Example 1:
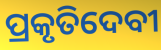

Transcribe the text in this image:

ପ୍ରକୃତିଦେବୀ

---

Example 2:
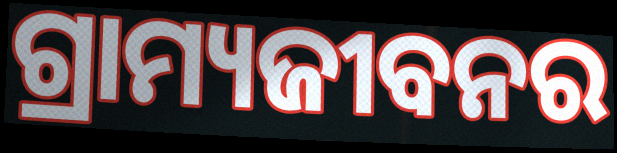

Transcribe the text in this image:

ଗ୍ରାମ୍ୟଜୀବନର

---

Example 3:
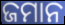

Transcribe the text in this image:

ଜମାନ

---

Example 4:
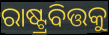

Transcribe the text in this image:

ରାଷ୍ଟ୍ରବିତ୍ତକୁ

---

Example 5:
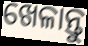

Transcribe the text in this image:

ଖେଳାନ୍ତୁ